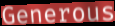
Generous